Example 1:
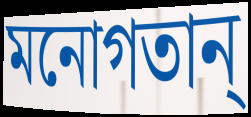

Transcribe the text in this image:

মনোগতান্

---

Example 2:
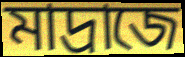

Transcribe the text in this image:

মাদ্রাজে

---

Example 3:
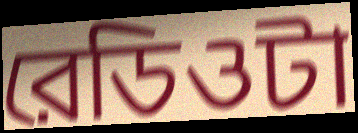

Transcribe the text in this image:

রেডিওটা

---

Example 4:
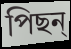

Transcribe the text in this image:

পিছন্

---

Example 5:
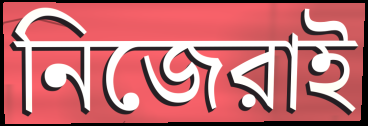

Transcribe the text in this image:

নিজেরাই